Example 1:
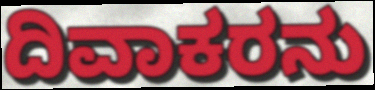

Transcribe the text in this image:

ದಿವಾಕರನು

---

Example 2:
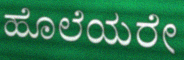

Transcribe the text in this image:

ಹೊಲೆಯರೇ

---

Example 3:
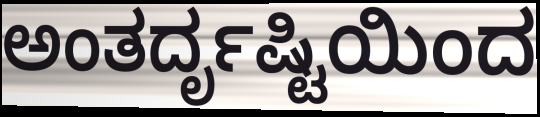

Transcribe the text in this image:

ಅಂತರ್ದೃಷ್ಟಿಯಿಂದ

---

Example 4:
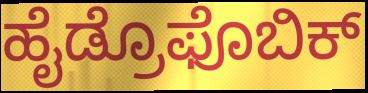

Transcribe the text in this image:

ಹೈಡ್ರೊಫೊಬಿಕ್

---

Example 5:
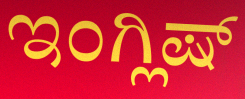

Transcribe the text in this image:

ಇಂಗ್ಲಿಷ್